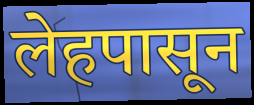
लेहपासून